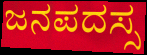
ಜನಪದಸ್ಸ